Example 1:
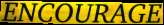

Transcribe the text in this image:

ENCOURAGE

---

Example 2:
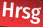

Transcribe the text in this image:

Hrsg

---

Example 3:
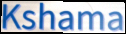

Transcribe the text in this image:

Kshama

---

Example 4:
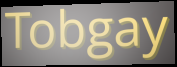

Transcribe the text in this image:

Tobgay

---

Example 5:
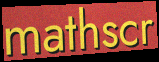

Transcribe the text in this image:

mathscr